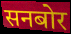
सनबोर